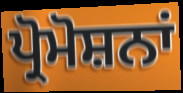
ਪ੍ਰੋਮੋਸ਼ਨਾਂ